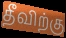
தீவிற்கு